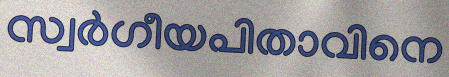
സ്വർഗീയപിതാവിനെ